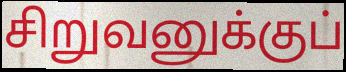
சிறுவனுக்குப்